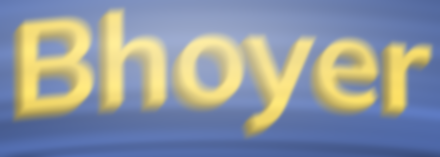
Bhoyer